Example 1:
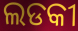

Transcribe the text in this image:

ଲଡକୀ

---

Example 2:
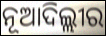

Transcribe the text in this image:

ନୂଆଦିଲ୍ଲୀର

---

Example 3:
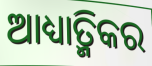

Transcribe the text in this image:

ଆଧ୍ୟାତ୍ମିକର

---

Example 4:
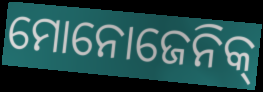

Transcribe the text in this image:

ମୋନୋଜେନିକ୍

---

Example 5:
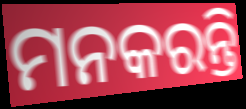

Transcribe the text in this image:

ମନକରନ୍ତି